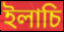
ইলাচি